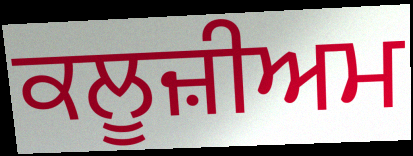
ਕਲੂਜ਼ੀਅਮ